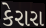
કેરારા